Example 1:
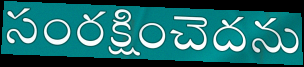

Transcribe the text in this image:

సంరక్షించెదను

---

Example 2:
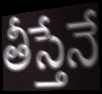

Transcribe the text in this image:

తీస్తేనే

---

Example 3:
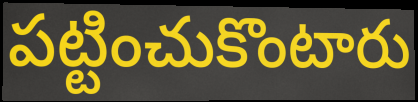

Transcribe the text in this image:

పట్టించుకొంటారు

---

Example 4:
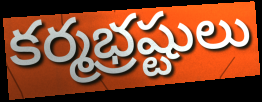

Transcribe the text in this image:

కర్మభ్రష్టులు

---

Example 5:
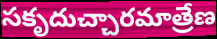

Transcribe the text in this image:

సకృదుచ్చారమాత్రేణ